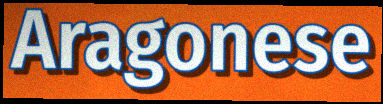
Aragonese